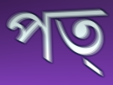
পত্